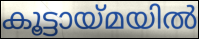
കൂട്ടായ്മയിൽ